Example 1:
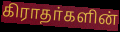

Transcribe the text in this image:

கிராதர்களின்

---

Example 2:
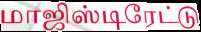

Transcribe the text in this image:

மாஜிஸ்டிரேட்டு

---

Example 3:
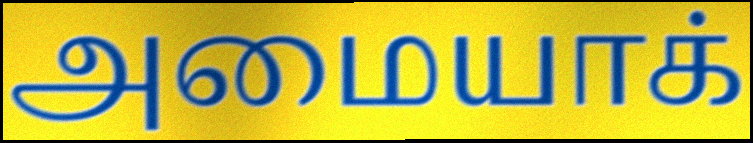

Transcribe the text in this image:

அமையாக்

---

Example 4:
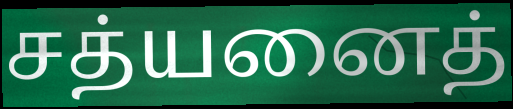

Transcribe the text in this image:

சத்யனைத்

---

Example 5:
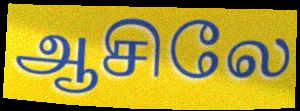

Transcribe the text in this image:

ஆசிலே